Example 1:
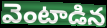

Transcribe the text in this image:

వెంటాడిన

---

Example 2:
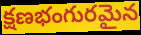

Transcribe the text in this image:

క్షణభంగురమైన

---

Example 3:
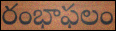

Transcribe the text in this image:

రంభాఫలం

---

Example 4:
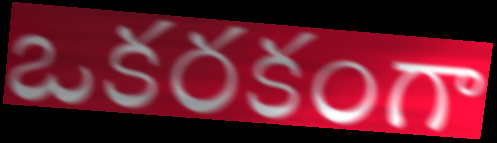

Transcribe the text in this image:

ఒకరకంగా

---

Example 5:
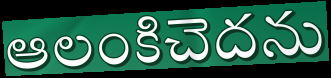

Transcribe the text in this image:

ఆలంకిచెదను